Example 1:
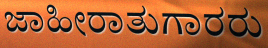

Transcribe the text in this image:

ಜಾಹೀರಾತುಗಾರರು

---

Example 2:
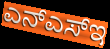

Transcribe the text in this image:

ಎನ್ಎಸ್ಇ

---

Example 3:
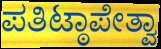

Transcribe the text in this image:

ಪತಿಟ್ಠಾಪೇತ್ವಾ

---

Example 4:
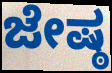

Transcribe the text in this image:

ಜೇಷ್ಠ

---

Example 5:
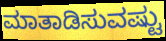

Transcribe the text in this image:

ಮಾತಾಡಿಸುವಷ್ಟು